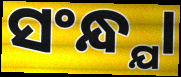
ସଂନ୍ଧ୍ଯା